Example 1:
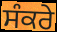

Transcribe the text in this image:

ਸੰਕਰੇ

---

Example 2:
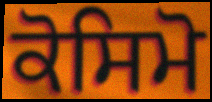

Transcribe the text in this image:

ਕੋਸਿਮੋ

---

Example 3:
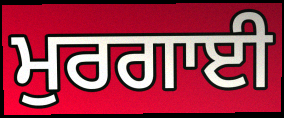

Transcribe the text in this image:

ਮੁਰਗਾਈ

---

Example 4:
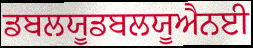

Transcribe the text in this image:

ਡਬਲਯੂਡਬਲਯੂਐਨਈ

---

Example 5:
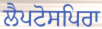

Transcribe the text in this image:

ਲੈਪਟੋਸਪਿਰਾ